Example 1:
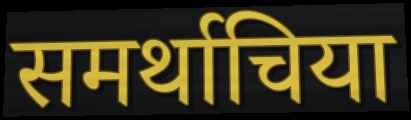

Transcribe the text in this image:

समर्थाचिया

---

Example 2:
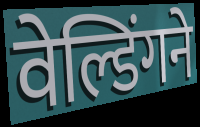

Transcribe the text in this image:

वेल्डिंगने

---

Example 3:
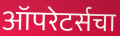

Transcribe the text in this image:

ऑपरेटर्सचा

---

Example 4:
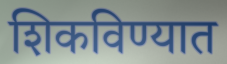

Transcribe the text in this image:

शिकविण्यात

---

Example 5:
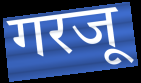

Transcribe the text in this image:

गरजू